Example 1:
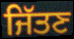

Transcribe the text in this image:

ਜਿੱਤਣ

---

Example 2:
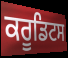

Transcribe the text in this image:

ਕਰੂਡਿਟਸ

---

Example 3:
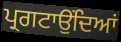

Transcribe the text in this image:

ਪ੍ਰਗਟਾਉਂਦਿਆਂ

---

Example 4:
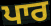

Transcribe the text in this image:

ਪਾਰ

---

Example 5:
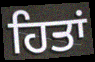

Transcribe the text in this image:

ਹਿਤਾਂ